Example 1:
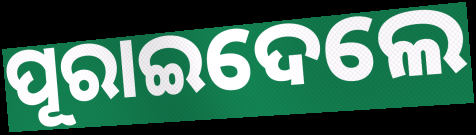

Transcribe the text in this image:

ପୂରାଇଦେଲେ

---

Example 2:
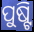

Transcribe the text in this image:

ପୁଷ୍ଟି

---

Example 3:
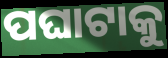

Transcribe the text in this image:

ପଘାଟାକୁ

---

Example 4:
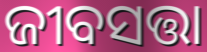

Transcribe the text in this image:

ଜୀବସତ୍ତା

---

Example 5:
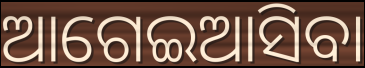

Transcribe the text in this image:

ଆଗେଇଆସିବା